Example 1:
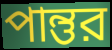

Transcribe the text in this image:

পান্তুর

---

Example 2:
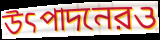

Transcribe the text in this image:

উৎপাদনেরও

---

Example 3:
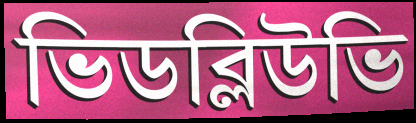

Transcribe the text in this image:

ভিডব্লিউভি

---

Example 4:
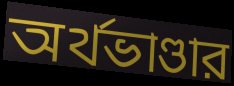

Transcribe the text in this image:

অর্থভাণ্ডার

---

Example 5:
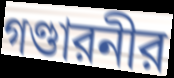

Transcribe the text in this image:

গণ্ডারনীর